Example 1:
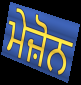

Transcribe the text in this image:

ਮੇਜ਼ੋਨ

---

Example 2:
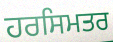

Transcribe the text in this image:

ਹਰਸਿਮਤਰ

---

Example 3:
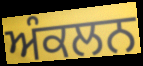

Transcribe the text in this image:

ਅੰਕਲਨ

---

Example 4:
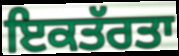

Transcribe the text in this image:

ਇਕਤੱਰਤਾ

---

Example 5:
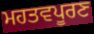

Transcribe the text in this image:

ਮਹਤਵਪੂਰਣ